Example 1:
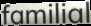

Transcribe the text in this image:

familial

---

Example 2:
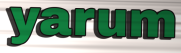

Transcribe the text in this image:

yarum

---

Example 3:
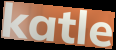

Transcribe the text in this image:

katle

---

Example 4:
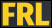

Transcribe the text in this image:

FRL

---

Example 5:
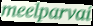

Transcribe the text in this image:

meelparvai